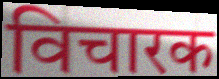
विचारक